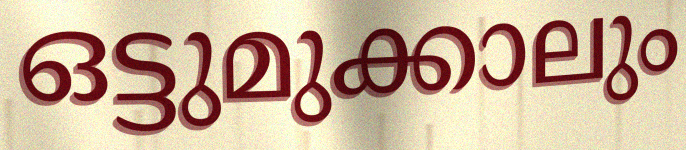
ഒട്ടുമുക്കാലും